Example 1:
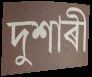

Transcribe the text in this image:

দুশাৰী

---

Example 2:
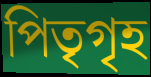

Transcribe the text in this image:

পিতৃগৃহ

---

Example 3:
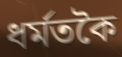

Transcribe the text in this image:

ধৰ্মতকৈ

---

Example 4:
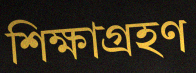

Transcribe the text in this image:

শিক্ষাগ্ৰহণ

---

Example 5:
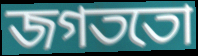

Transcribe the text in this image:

জগততো